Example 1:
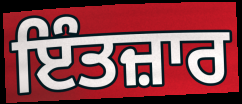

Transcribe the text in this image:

ਇੰਤਜ਼ਾਰ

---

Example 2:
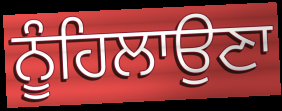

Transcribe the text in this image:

ਨੂੰਹਿਲਾਉਣਾ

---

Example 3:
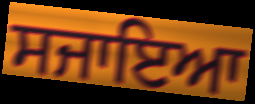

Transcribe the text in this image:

ਸਜਾਇਆ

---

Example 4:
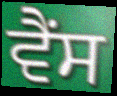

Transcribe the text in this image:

ਵੈਂਸ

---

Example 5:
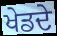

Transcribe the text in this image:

ਖੇਡਦੇ